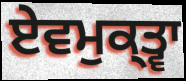
ਏਵਮੁਕ੍ਤ੍ਵਾ